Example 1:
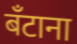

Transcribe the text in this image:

बँटाना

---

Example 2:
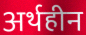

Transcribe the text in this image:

अर्थहीन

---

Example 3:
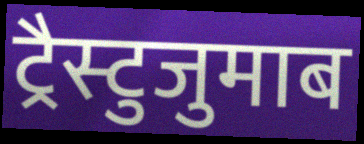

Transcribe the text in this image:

ट्रैस्टुजुमाब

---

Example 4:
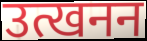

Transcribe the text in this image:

उत्खनन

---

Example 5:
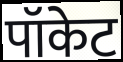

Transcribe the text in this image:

पॉकेट